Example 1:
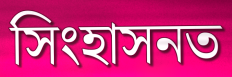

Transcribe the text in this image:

সিংহাসনত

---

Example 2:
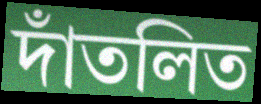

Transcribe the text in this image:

দাঁতলিত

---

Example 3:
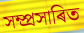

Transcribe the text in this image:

সম্প্ৰসাৰিত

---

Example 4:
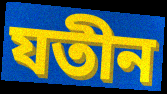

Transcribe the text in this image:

যতীন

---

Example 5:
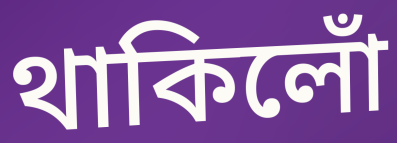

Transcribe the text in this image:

থাকিলোঁ